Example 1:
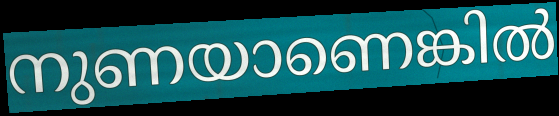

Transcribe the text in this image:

നുണയാണെങ്കിൽ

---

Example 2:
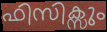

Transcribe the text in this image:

ഫിസിക്സും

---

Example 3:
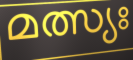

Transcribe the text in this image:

മത്സ്യഃ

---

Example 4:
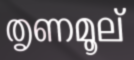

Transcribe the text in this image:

തൃണമൂല്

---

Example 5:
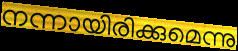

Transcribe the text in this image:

നന്നായിരിക്കുമെന്നു